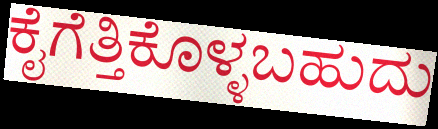
ಕೈಗೆತ್ತಿಕೊಳ್ಳಬಹುದು